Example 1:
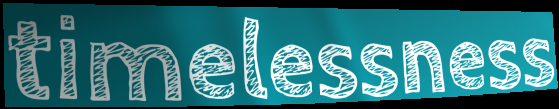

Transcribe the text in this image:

timelessness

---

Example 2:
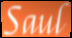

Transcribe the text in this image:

Saul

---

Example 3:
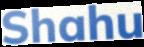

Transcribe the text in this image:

Shahu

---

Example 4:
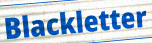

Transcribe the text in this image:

Blackletter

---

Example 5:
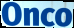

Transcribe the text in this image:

Onco